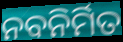
ନବନିର୍ମିତ